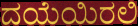
ದಯೆಯಿರಲಿ